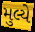
મુલ્યે